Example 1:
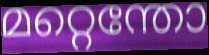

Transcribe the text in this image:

മറ്റെന്തോ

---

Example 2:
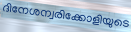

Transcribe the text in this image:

ദിനേശന്വരിക്കോളിയുടെ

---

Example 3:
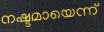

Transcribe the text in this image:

നഷ്ടമായെന്ന്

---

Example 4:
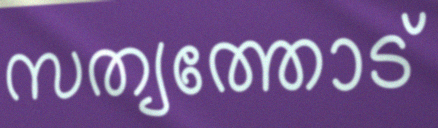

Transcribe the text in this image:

സത്യത്തോട്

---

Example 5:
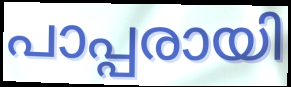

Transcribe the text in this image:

പാപ്പരായി